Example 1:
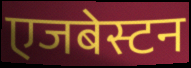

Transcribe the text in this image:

एजबेस्‍टन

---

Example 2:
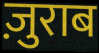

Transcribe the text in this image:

ज़ुराब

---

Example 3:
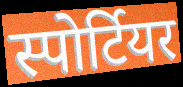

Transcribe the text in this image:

स्पोर्टियर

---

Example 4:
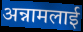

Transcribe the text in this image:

अन्नामलाई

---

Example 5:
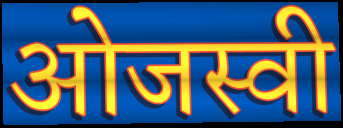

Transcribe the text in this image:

ओजस्वी